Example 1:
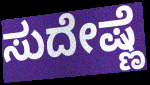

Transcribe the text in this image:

ಸುದೇಷ್ಣೆ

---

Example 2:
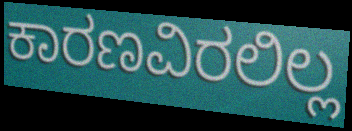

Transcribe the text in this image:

ಕಾರಣವಿರಲಿಲ್ಲ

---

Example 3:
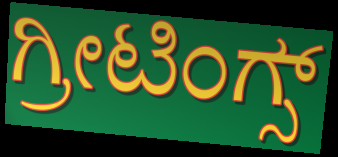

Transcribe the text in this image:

ಗ್ರೀಟಿಂಗ್ಸ್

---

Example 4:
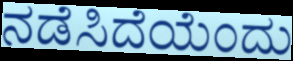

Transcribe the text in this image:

ನಡೆಸಿದೆಯೆಂದು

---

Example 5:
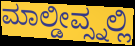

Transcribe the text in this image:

ಮಾಲ್ಡೀವ್ಸ್ನಲ್ಲಿ